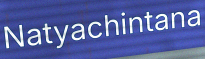
Natyachintana